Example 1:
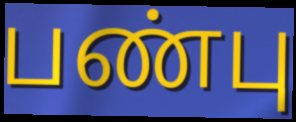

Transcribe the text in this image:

பண்பு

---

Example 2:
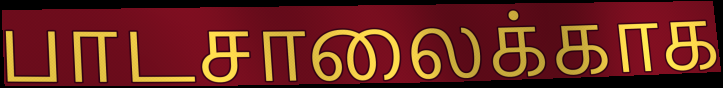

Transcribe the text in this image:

பாடசாலைக்காக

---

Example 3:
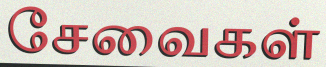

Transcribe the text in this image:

சேவைகள்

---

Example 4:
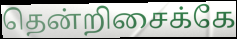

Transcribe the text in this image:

தென்றிசைக்கே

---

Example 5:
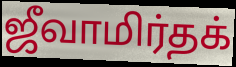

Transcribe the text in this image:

ஜீவாமிர்தக்